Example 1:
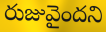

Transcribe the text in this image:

రుజువైందని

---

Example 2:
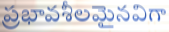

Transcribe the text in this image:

ప్రభావశీలమైనవిగా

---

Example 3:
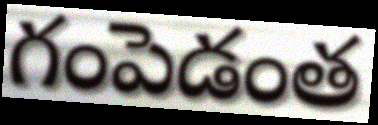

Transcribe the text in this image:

గంపెడంత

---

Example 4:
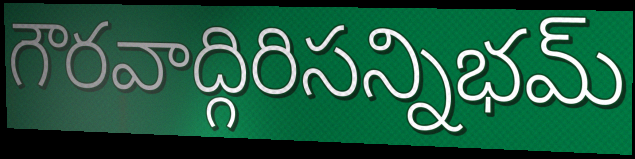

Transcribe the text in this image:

గౌరవాద్గిరిసన్నిభమ్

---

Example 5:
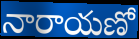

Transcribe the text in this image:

నారాయణో